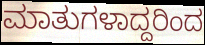
ಮಾತುಗಳಾದ್ದರಿಂದ